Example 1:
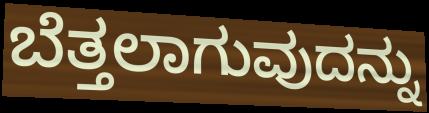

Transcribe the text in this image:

ಬೆತ್ತಲಾಗುವುದನ್ನು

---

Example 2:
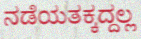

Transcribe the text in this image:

ನಡೆಯತಕ್ಕದ್ದಲ್ಲ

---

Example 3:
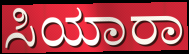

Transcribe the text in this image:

ಸಿಯಾರಾ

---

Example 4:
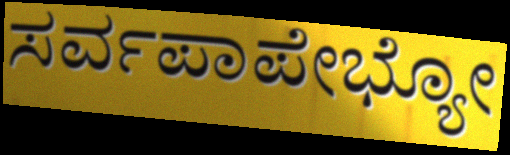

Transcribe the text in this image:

ಸರ್ವಪಾಪೇಭ್ಯೋ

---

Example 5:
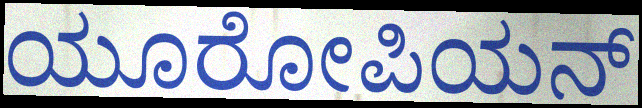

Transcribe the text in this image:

ಯೂರೋಪಿಯನ್